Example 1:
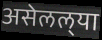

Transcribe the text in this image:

असेलल्या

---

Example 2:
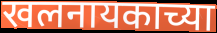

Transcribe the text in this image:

खलनायकाच्या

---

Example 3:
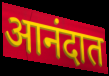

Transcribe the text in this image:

आनंदात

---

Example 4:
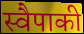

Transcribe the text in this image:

स्वैपाकी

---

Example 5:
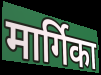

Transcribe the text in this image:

मार्गिका